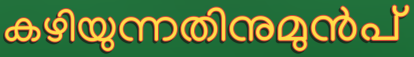
കഴിയുന്നതിനുമുൻപ്